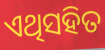
ଏଥିସହିତ